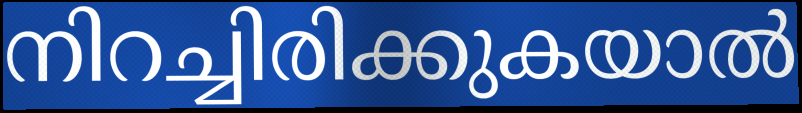
നിറച്ചിരിക്കുകയാൽ